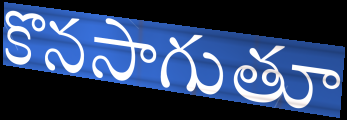
కొనసాగుతూ